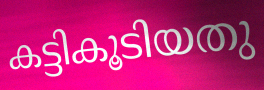
കട്ടികൂടിയതു